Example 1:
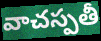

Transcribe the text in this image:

వాచస్పతీ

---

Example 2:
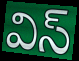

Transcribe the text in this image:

విస్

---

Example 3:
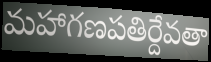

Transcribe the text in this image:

మహాగణపతిర్దేవతా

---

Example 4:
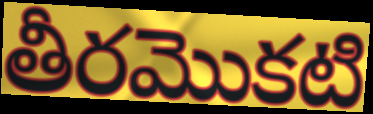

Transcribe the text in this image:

తీరమొకటి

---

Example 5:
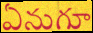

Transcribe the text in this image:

ఏనుగూ